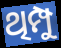
ଥିମ୍ପୁ